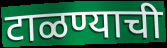
टाळण्याची